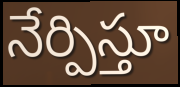
నేర్పిస్తూ